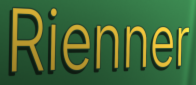
Rienner